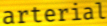
arterial